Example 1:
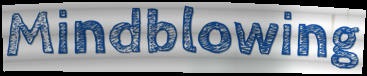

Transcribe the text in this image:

Mindblowing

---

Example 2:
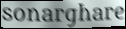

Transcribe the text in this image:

sonarghare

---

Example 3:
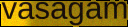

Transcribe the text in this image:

vasagam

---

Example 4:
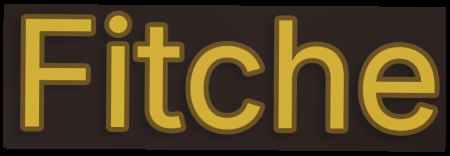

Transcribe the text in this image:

Fitche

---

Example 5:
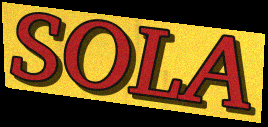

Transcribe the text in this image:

SOLA